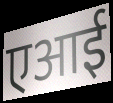
एआई